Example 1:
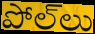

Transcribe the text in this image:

పోల్‌లు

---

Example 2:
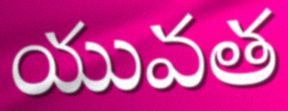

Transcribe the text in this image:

యువత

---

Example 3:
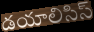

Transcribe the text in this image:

డయాలిసిస్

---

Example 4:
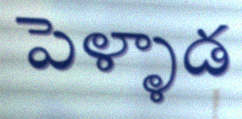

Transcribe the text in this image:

పెళ్ళాడ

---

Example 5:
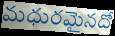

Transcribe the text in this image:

మధురమైనదో